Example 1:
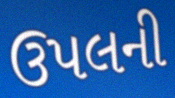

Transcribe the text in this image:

ઉપલની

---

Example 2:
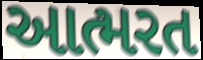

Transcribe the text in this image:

આત્મરત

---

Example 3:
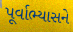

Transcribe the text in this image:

પૂર્વાભ્યાસને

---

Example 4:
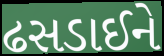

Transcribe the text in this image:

ઢસડાઈને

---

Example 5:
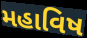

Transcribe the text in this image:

મહાવિષ